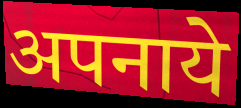
अपनाये